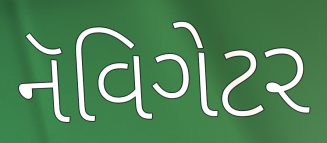
નૅવિગેટર